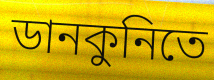
ডানকুনিতে